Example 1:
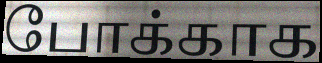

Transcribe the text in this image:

போக்காக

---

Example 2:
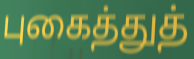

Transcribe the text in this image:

புகைத்துத்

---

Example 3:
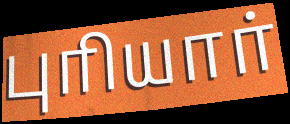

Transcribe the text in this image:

புரியார்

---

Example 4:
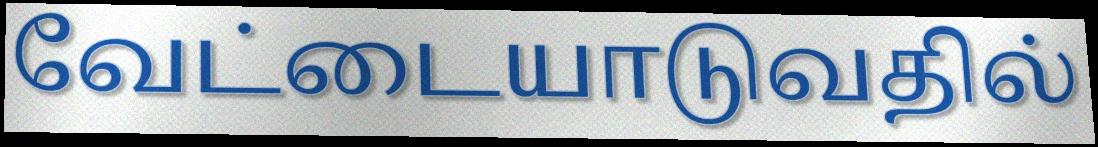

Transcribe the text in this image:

வேட்டையாடுவதில்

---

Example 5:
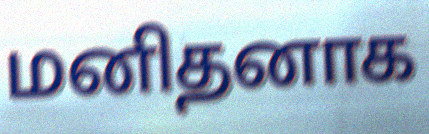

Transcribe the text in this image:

மனிதனாக